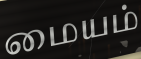
மையம்